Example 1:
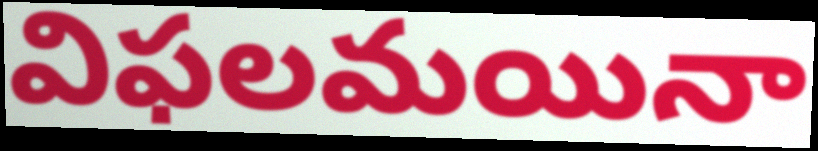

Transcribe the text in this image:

విఫలమయినా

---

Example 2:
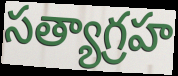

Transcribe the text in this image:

సత్యాగ్రహ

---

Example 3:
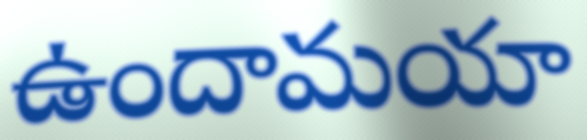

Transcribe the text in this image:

ఉందామయా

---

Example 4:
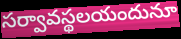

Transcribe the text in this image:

సర్వావస్థలయందునూ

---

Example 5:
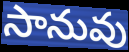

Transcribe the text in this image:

సానువు